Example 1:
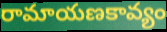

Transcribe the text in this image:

రామాయణకావ్యం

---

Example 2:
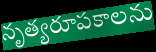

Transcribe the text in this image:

నృత్యరూపకాలను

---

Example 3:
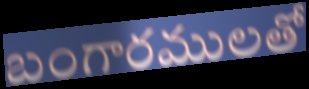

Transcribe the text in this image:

బంగారములతో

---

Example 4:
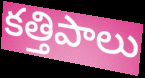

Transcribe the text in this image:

కత్తిపాలు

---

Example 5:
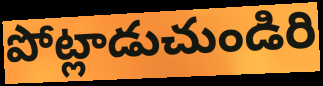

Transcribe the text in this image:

పోట్లాడుచుండిరి